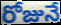
రోజునే